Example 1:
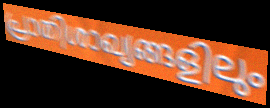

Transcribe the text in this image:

പ്രാതിശാഖ്യങ്ങളിലും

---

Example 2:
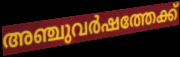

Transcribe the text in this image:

അഞ്ചുവർഷത്തേക്ക്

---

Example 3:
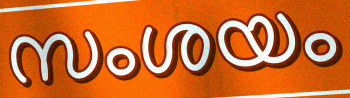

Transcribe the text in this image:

സംശയം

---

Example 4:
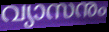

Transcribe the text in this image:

വ്യാസനും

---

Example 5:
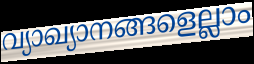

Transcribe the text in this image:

വ്യാഖ്യാനങ്ങളെല്ലാം